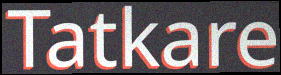
Tatkare